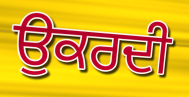
ਉਕਰਦੀ